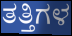
ತತ್ತಿಗಳ